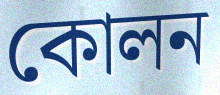
কোলন